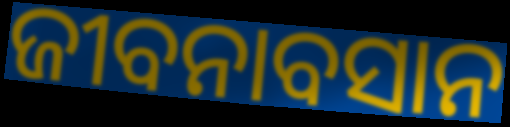
ଜୀବନାବସାନ